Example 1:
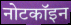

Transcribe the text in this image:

नोटकॉइन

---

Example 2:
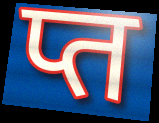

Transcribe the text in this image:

प्त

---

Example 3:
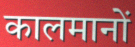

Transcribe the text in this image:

कालमानों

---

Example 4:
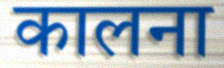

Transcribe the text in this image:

कालना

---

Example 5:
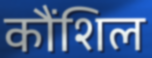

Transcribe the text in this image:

कौंशिल